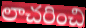
లాచరించి